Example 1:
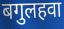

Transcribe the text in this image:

बगुलहवा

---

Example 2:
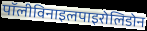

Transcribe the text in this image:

पॉलीविनाइलपाइरोलिडोन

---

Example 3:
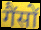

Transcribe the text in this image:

गैंसों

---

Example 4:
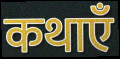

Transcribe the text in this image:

कथाएँ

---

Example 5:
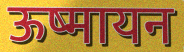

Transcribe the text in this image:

ऊष्मायन